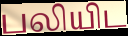
பலியிட